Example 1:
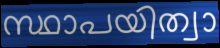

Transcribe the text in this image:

സ്ഥാപയിത്വാ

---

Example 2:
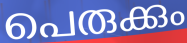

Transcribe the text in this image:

പെരുക്കും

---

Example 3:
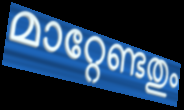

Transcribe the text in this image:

മാറ്റേണ്ടതും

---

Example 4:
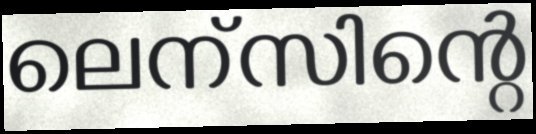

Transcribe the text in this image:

ലെന്സിന്റെ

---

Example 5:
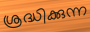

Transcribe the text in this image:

ശ്രദ്ധിക്കുന്ന